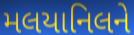
મલયાનિલને